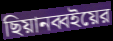
ছিয়ানব্বইয়ের